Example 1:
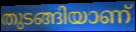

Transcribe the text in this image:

തുടങ്ങിയാണ്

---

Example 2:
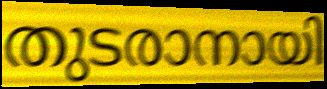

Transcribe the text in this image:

തുടരാനായി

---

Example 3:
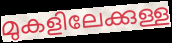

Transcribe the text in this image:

മുകളിലേക്കുള്ള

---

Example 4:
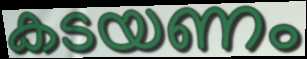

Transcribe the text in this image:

കടയണം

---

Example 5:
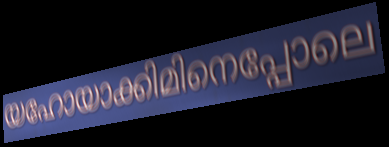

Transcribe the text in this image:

യഹോയാക്കിമിനെപ്പോലെ